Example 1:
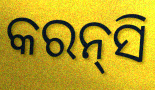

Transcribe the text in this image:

କରନ୍‌ସି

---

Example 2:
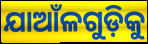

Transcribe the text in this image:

ଯାଆଁଳଗୁଡ଼ିକୁ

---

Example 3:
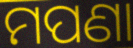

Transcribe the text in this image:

ମପଣା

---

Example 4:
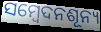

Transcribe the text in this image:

ସମ୍ବେଦନଶୂନ୍ୟ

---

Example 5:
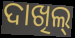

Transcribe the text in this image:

ଦାଖିଲ୍